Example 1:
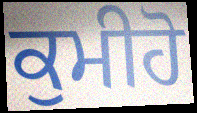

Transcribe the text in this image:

ਕੁਮੀਹੋ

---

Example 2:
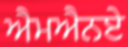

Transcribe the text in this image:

ਐਮਐਨਏ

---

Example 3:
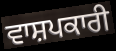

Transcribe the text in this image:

ਵਾਸ਼ਪਕਾਰੀ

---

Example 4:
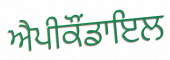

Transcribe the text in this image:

ਐਪੀਕੌਂਡਾਇਲ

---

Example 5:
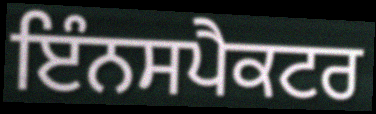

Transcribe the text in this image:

ਇੰਨਸਪੈਕਟਰ